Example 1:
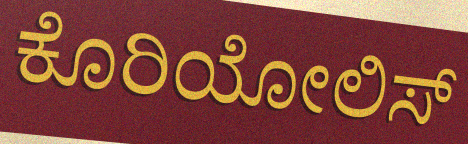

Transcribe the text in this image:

ಕೊರಿಯೋಲಿಸ್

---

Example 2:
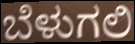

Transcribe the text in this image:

ಬೆಳುಗಲಿ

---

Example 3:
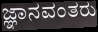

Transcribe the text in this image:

ಜ್ಞಾನವಂತರು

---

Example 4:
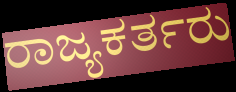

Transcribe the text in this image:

ರಾಜ್ಯಕರ್ತರು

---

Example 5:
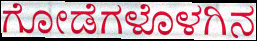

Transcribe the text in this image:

ಗೋಡೆಗಳೊಳಗಿನ